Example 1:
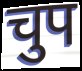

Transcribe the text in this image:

चुप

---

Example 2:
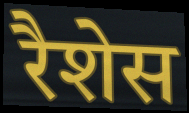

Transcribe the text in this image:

रैशेस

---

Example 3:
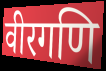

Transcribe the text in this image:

वीरगणि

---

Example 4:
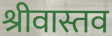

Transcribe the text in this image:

श्रीवास्तव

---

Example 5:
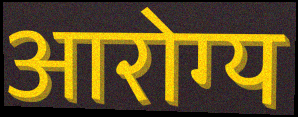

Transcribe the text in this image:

आरोग्य